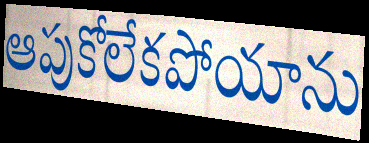
ఆపుకోలేకపోయాను